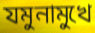
যমুনামুখে